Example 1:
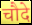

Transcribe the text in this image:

चौदे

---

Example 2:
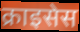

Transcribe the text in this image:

क्राइसेस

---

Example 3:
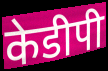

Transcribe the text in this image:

केडीपी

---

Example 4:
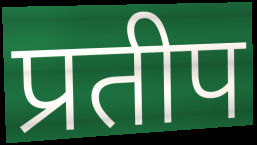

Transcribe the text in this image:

प्रतीप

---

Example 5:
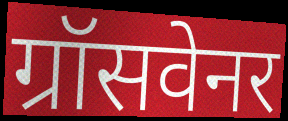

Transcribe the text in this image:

ग्रॉसवेनर